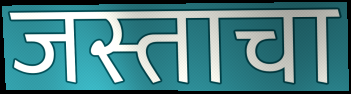
जस्ताचा